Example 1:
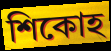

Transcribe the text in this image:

শিকোহ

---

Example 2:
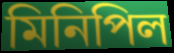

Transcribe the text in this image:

মিনিপিল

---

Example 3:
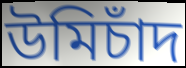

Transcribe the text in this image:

উমিচাঁদ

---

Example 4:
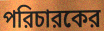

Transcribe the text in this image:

পরিচারকের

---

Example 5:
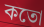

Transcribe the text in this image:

কতো